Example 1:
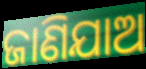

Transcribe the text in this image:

ଜାଣିଯାଅ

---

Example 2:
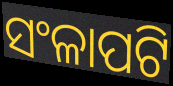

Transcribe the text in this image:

ସଂଳାପଟି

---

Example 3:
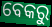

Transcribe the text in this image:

ବେକରୁ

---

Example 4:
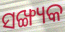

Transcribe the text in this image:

ସଙ୍ଖ୍ୟକ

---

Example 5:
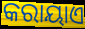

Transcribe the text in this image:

କରାୟାଏ